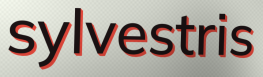
sylvestris